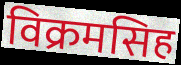
विक्रमसिह